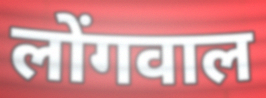
लोंगवाल